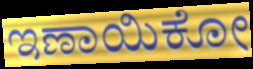
ಇಣಾಯಿಕೋ